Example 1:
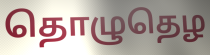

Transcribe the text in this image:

தொழுதெழ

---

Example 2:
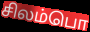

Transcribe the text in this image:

சிலம்பொ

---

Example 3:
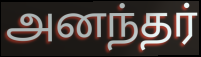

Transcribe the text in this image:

அனந்தர்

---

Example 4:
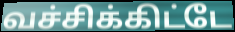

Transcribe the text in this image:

வச்சிக்கிட்டே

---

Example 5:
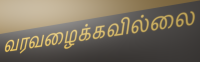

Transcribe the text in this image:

வரவழைக்கவில்லை